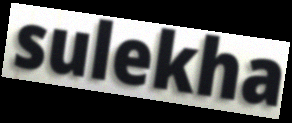
sulekha